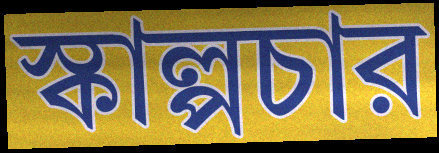
স্কাল্পচার